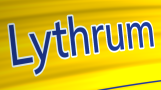
Lythrum